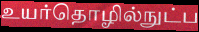
உயர்தொழில்நுட்ப